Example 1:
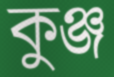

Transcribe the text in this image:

কুঞ্জ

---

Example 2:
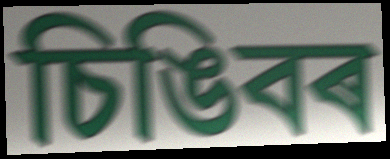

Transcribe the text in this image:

চিঙিবৰ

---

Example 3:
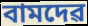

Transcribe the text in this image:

বামদেৱ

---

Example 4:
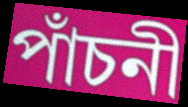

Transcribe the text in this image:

পাঁচনী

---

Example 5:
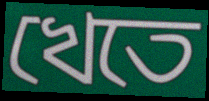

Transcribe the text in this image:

খেতে